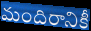
మందిరానికీ